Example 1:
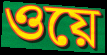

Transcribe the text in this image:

ওয়ে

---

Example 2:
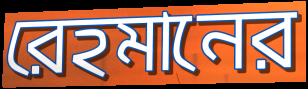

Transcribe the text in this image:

রেহমানের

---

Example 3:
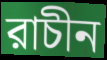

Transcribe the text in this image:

রাচীন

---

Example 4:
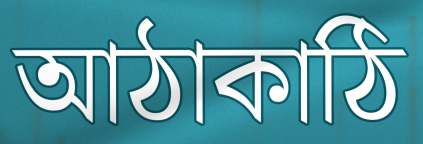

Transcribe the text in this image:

আঠাকাঠি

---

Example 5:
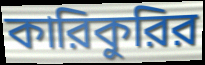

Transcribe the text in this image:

কারিকুরির